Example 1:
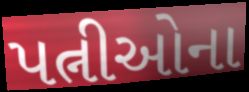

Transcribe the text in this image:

પત્નીઓના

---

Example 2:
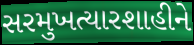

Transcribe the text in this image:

સરમુખત્યારશાહીને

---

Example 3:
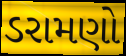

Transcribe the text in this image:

ડરામણો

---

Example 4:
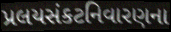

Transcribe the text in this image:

પ્રલયસંકટનિવારણના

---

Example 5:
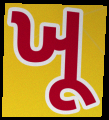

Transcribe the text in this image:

ખૂ